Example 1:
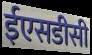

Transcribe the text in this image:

ईएसडीसी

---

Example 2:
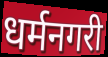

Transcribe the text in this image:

धर्मनगरी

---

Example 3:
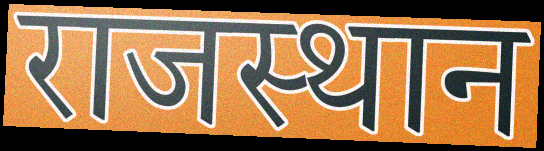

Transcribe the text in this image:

राजस्थान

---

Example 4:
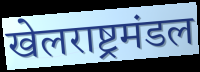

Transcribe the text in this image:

खेलराष्ट्रमंडल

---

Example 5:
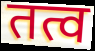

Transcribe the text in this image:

तत्व